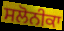
ਸਲੋਨੀਕਾ